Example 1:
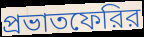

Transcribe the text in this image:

প্রভাতফেরির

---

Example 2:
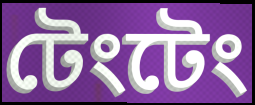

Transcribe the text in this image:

টেংটেং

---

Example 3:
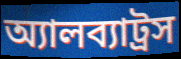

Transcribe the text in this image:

অ্যালব্যাট্রস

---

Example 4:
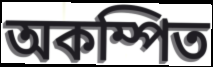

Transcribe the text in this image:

অকম্পিত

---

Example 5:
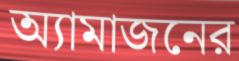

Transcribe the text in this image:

অ্যামাজনের